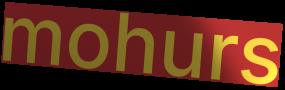
mohurs